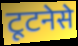
टूटनेसे